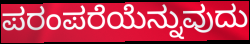
ಪರಂಪರೆಯೆನ್ನುವುದು